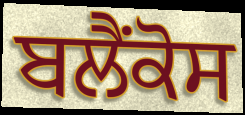
ਬਲੈਂਕੋਸ